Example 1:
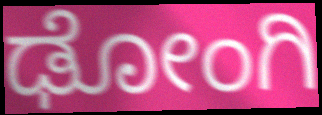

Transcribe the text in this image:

ಢೋಂಗಿ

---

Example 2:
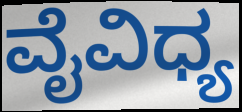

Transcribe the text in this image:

ವೈವಿಧ್ಯ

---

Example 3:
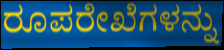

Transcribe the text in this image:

ರೂಪರೇಖೆಗಳನ್ನು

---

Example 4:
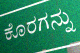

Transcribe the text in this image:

ಕೊರಗನ್ನು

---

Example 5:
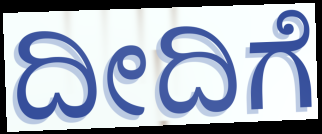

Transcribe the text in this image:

ದೀದಿಗೆ